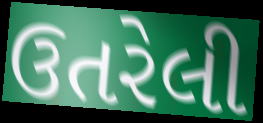
ઉતરેલી